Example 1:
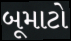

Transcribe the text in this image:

બૂમાટો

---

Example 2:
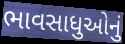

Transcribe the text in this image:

ભાવસાધુઓનું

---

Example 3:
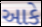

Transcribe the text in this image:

આકે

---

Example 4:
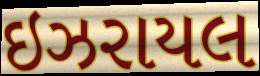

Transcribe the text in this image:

ઇઝરાયલ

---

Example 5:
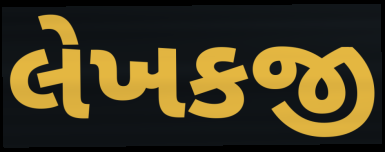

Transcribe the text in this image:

લેખકજી